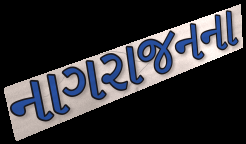
નાગરાજનના